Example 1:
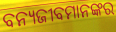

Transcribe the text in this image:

ବନ୍ୟଜୀବମାନଙ୍କର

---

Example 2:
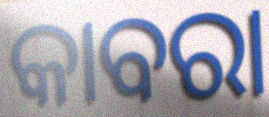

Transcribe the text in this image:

କାବରା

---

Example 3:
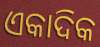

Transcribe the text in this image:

ଏକାଦିକ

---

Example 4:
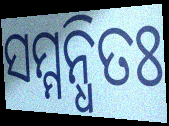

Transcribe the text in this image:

ସମ୍ମନ୍ଧିତଃ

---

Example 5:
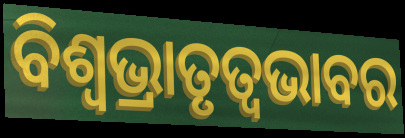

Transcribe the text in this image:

ବିଶ୍ଵଭ୍ରାତୃତ୍ୱଭାବର